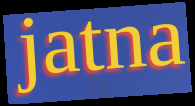
jatna